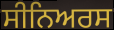
ਸੀਨਿਅਰਸ